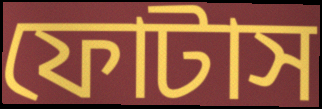
ফোটাস